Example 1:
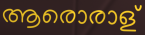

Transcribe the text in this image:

ആരൊരാള്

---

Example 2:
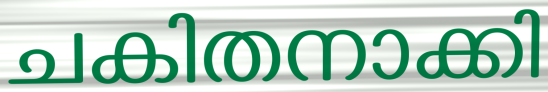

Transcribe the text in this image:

ചകിതനാക്കി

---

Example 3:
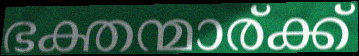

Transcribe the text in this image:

ഭക്തന്മാര്ക്ക്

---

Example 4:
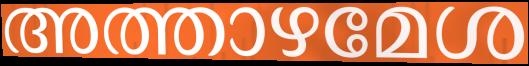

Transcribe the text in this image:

അത്താഴമേശ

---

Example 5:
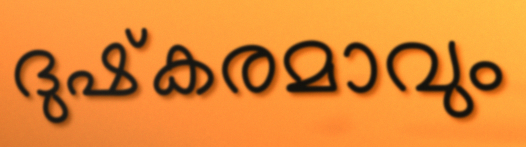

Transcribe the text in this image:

ദുഷ്‌കരമാവും